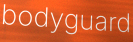
bodyguard